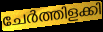
ചേർത്തിളക്കി